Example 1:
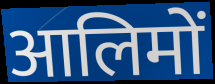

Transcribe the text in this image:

आलिमों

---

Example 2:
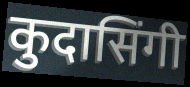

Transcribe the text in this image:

कुदासिंगी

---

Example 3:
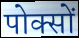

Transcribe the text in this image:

पोक्सों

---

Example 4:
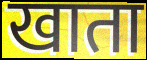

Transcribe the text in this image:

खाता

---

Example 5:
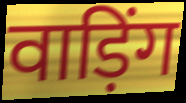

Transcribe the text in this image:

वाड़िंग